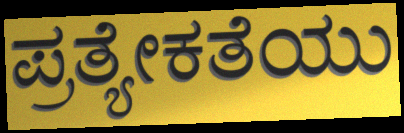
ಪ್ರತ್ಯೇಕತೆಯು